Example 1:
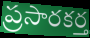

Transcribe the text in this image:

ప్రసారకర్త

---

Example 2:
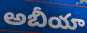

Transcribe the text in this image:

అబీయా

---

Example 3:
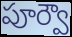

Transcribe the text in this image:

పూర్వౌ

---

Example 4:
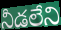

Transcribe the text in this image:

నీడలేని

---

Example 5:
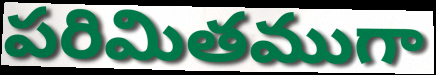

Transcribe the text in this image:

పరిమితముగా